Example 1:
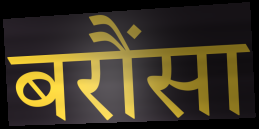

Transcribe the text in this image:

बरौंसा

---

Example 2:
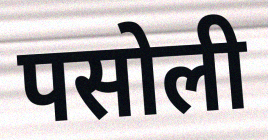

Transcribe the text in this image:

पसोली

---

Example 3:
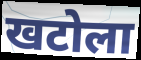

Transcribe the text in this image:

खटोला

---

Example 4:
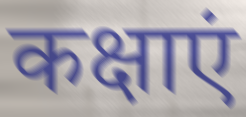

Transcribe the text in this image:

कक्षाएं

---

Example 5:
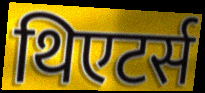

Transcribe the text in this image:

थिएटर्स